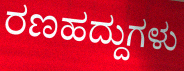
ರಣಹದ್ದುಗಳು